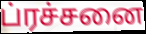
ப்ரச்சனை